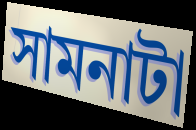
সামনাটা